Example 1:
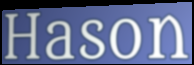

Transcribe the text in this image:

Hason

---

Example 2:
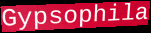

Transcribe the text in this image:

Gypsophila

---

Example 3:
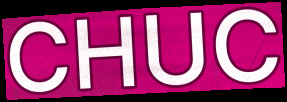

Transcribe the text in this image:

CHUC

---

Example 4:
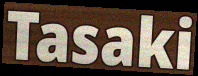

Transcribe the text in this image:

Tasaki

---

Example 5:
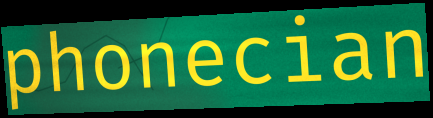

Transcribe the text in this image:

phonecian